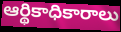
ఆర్థికాధికారాలు